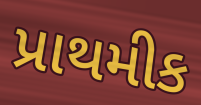
પ્રાથમીક